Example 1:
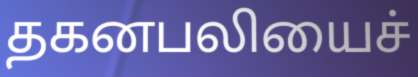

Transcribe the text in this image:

தகனபலியைச்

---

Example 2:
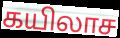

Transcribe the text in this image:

கயிலாச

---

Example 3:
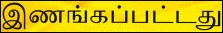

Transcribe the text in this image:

இணங்கப்பட்டது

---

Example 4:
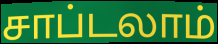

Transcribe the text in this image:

சாப்டலாம்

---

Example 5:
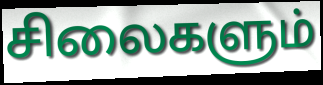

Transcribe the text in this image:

சிலைகளும்